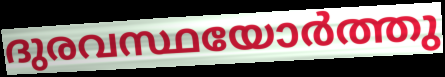
ദുരവസ്ഥയോർത്തു